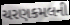
ચરણકમલની